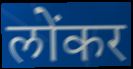
लोंकर